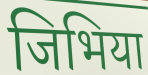
जिभिया